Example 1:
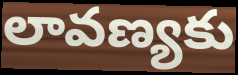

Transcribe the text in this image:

లావణ్యకు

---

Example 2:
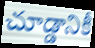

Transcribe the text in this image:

చూడ్డానికీ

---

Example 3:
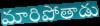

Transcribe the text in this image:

మారిపోతాడు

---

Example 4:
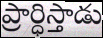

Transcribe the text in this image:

ప్రార్ధిస్తాడు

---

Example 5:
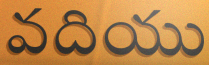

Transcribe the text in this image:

వదియు